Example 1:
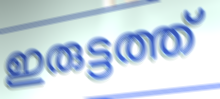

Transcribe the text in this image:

ഇരുട്ടത്ത്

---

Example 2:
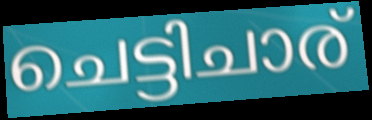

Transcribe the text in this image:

ചെട്ടിചാര്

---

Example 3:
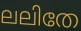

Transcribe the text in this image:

ലലിതേ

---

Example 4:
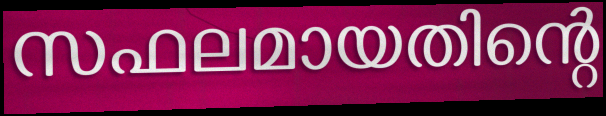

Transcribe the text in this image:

സഫലമായതിന്റെ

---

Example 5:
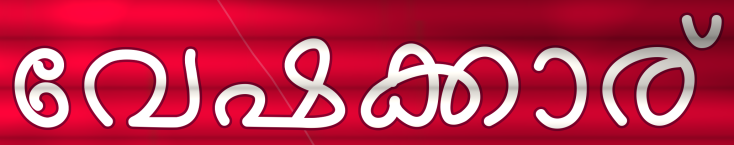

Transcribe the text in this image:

വേഷക്കാര്